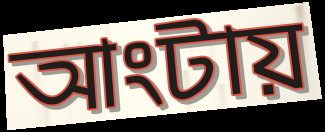
আংটায়